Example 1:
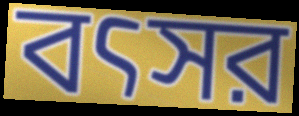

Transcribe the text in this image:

বৎসর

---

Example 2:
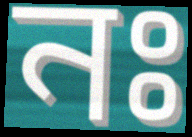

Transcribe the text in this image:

নঃ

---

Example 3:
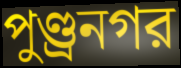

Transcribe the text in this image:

পুণ্ড্রনগর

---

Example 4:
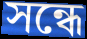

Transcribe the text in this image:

সন্ধে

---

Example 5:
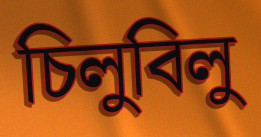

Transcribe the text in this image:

চিলুবিলু